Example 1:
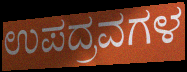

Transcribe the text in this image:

ಉಪದ್ರವಗಳ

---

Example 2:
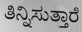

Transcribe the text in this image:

ತಿನ್ನಿಸುತ್ತಾರೆ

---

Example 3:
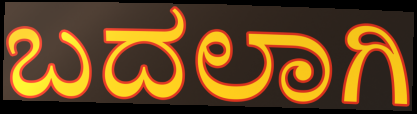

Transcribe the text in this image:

ಬದಲಾಗಿ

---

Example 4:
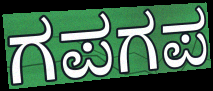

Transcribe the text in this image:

ಗಪಗಪ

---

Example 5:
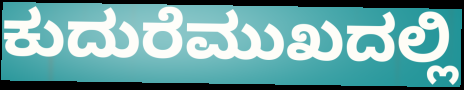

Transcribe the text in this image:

ಕುದುರೆಮುಖದಲ್ಲಿ